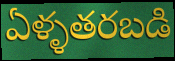
ఏళ్ళతరబడి